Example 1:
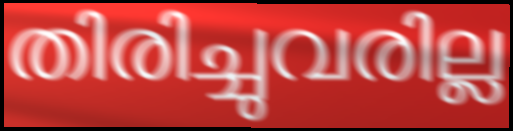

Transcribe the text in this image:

തിരിച്ചുവരില്ല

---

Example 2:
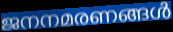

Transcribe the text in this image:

ജനനമരണങ്ങൾ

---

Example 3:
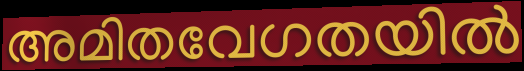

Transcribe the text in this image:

അമിതവേഗതയിൽ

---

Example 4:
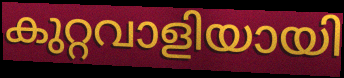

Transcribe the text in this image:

കുറ്റവാളിയായി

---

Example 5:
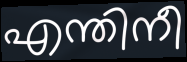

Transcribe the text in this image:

എന്തിനീ